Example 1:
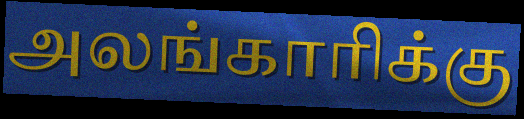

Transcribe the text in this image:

அலங்காரிக்கு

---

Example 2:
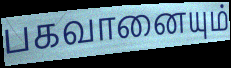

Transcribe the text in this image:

பகவானையும்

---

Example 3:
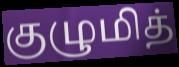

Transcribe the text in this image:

குழுமித்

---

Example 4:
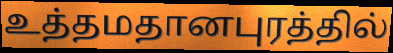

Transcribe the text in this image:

உத்தமதானபுரத்தில்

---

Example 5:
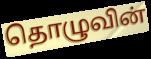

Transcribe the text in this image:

தொழுவின்